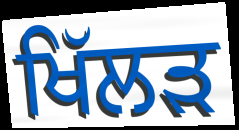
ਖਿੱਲੜ